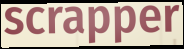
scrapper